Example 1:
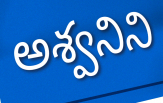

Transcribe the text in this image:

అశ్వనిని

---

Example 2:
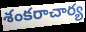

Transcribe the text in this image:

శంకరాచార్య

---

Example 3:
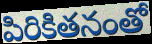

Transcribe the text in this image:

పిరికితనంతో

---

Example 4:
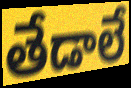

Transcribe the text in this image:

తేడాలే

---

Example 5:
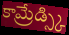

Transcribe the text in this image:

కామ్రేడ్స్కి